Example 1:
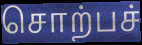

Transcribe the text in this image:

சொற்பச்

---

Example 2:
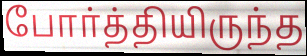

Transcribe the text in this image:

போர்த்தியிருந்த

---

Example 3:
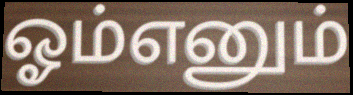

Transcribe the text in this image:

ஓம்எனும்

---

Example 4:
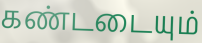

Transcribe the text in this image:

கண்டடையும்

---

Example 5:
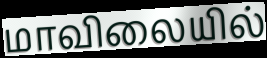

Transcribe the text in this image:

மாவிலையில்